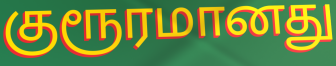
குரூரமானது